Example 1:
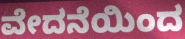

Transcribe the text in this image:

ವೇದನೆಯಿಂದ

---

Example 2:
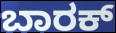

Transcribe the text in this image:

ಬಾರಕ್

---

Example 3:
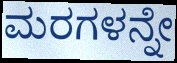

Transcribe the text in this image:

ಮರಗಳನ್ನೇ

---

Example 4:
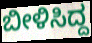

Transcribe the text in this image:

ಬೀಳಿಸಿದ್ದ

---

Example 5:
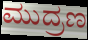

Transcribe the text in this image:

ಮುದ್ರಣ